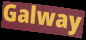
Galway